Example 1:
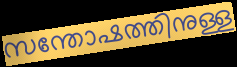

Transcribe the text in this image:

സന്തോഷത്തിനുള്ള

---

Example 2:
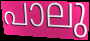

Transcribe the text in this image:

പാലു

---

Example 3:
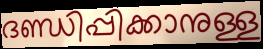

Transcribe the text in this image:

ദണ്ഡിപ്പിക്കാനുള്ള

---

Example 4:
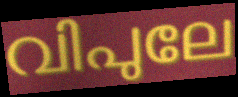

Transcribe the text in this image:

വിപുലേ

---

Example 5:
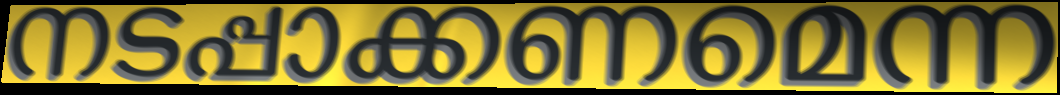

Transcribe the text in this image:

നടപ്പാക്കണമെന്ന